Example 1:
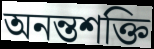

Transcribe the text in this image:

অনন্তশক্তি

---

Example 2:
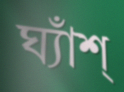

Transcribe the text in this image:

ঘ্যাঁশ্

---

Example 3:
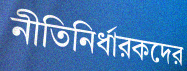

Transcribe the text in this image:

নীতিনির্ধারকদের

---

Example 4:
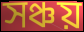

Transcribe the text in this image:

সঞ্চয়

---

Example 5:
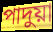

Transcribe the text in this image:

পাদুয়া